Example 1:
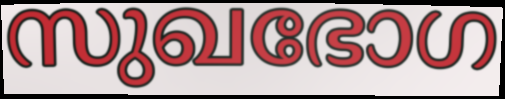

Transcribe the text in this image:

സുഖഭോഗ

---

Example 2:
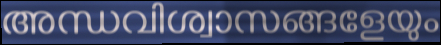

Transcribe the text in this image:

അന്ധവിശ്വാസങ്ങളേയും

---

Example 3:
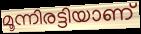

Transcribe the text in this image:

മൂന്നിരട്ടിയാണ്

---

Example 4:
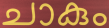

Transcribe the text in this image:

ചാകും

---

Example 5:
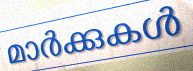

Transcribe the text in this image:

മാർക്കുകൾ